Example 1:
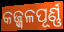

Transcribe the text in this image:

କଜ୍ଜ୍ୱଳପୂର୍ଣ୍ଣ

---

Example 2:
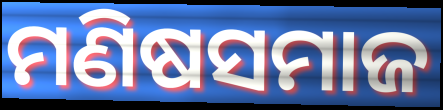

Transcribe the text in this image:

ମଣିଷସମାଜ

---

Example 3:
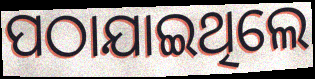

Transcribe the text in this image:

ପଠାଯାଇଥିଲେ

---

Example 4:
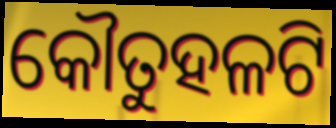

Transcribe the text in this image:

କୌତୁହଳଟି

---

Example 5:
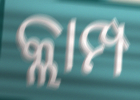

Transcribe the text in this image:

କ୍ଲାମ୍ପ